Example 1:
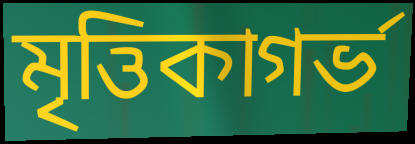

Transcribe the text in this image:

মৃত্তিকাগর্ভ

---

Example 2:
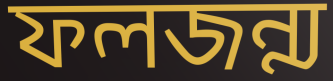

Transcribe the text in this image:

ফলজন্ম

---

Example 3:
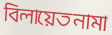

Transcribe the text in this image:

বিলায়েতনামা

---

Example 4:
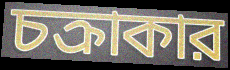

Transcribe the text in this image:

চক্রাকার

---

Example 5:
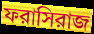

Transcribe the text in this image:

ফরাসিরাজ